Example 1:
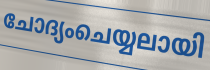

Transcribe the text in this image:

ചോദ്യംചെയ്യലായി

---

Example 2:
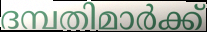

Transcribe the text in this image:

ദമ്പതിമാർക്ക്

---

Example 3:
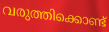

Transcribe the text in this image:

വരുത്തിക്കൊണ്ട്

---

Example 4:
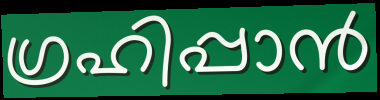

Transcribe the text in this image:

ഗ്രഹിപ്പാൻ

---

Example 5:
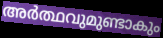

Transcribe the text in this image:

അർത്ഥവുമുണ്ടാകും